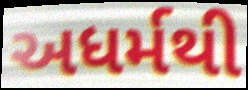
અધર્મથી